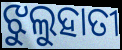
ଝୁଲୁହାତୀ